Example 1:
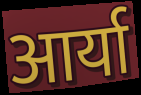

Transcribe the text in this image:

आर्या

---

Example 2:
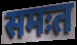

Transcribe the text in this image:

समःत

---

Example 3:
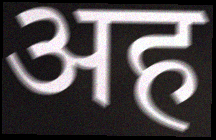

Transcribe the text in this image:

अह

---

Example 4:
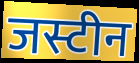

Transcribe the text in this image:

जस्टीन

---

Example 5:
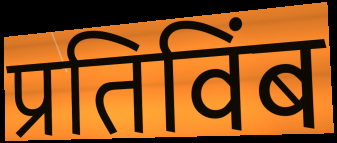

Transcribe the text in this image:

प्रतिविंब